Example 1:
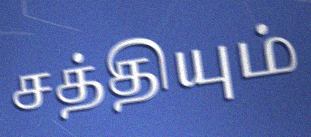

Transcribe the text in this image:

சத்தியும்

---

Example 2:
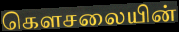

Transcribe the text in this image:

கௌசலையின்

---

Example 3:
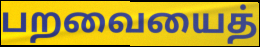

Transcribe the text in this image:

பறவையைத்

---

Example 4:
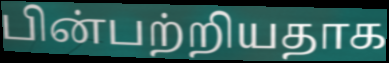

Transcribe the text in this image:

பின்பற்றியதாக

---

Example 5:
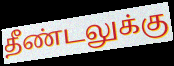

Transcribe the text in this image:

தீண்டலுக்கு